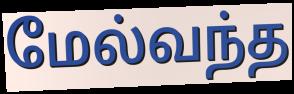
மேல்வந்த